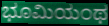
ಭೂಮಿಯಂಥ